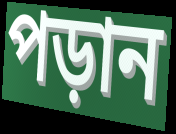
পড়ান